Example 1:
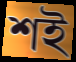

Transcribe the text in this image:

শই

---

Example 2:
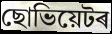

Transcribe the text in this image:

ছোভিয়েটৰ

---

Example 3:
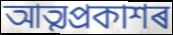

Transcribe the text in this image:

আত্মপ্ৰকাশৰ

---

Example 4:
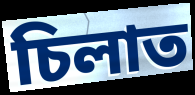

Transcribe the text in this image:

চিলাত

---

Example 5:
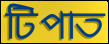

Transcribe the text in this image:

টিপাত